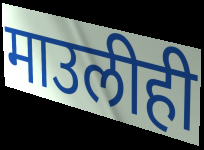
माउलीही